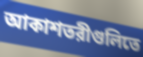
আকাশতরীগুলিতে